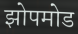
झोपमोड